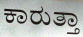
ಕಾರುತ್ತಾ